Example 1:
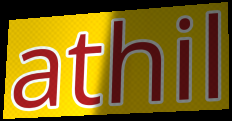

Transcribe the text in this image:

athil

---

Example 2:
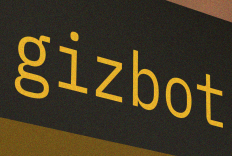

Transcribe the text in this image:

gizbot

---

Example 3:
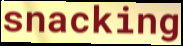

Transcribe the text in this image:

snacking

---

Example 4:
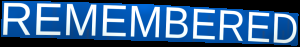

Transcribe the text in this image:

REMEMBERED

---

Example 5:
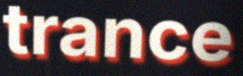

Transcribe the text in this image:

trance